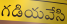
గడియవేసి